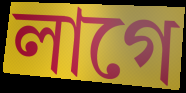
লাগে